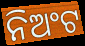
ନିଅଂଟ